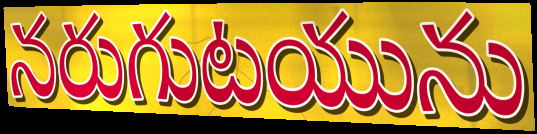
నరుగుటయును